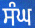
ਸੰਘ